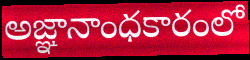
అజ్ఞానాంధకారంలో